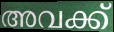
അവക്ക്